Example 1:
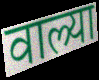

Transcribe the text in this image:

वाल्या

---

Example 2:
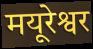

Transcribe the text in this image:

मयूरेश्वर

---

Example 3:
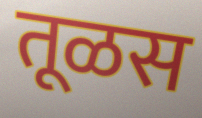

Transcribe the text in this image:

तूळस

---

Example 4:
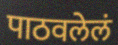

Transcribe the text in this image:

पाठवलेलं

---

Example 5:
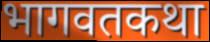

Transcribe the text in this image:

भागवतकथा